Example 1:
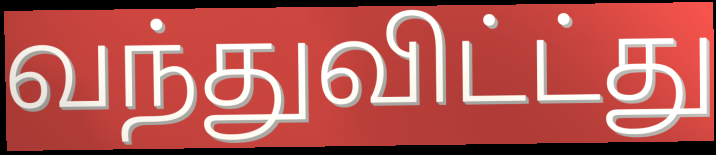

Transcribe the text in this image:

வந்துவிட்ட்து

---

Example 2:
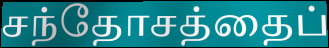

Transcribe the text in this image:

சந்தோசத்தைப்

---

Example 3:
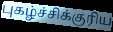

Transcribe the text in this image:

புகழ்ச்சிக்குரிய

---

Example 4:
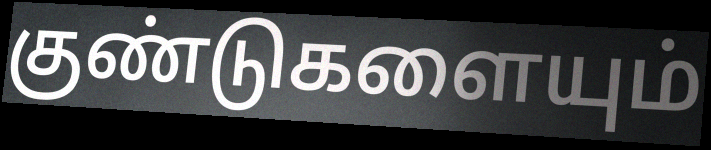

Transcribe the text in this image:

குண்டுகளையும்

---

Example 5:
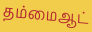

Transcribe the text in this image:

தம்மைஆட்